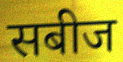
सबीज